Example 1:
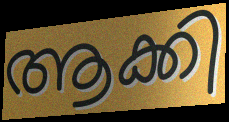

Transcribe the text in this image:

ആക്കി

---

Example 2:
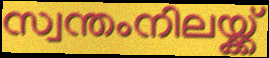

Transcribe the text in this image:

സ്വന്തംനിലയ്ക്ക്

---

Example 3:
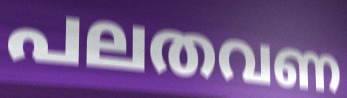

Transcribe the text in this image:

പലതവണ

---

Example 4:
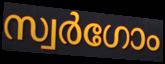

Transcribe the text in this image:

സ്വർഗോം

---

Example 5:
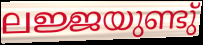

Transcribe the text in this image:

ലജ്ജയുണ്ടു്